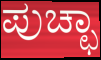
ಪುಚ್ಛಾ